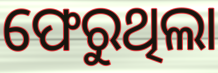
ଫେରୁଥିଲା